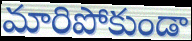
మారిపోకుండా